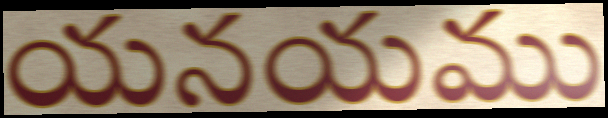
యనయము